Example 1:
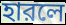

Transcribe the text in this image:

হারলে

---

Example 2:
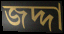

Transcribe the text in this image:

জদ্দা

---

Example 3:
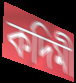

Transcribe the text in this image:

কদিমী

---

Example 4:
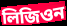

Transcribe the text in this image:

লিজিওন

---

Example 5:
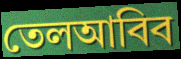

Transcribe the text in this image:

তেলআবিব